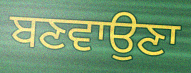
ਬਣਵਾਉਣਾ